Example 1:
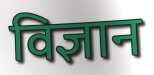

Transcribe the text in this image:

विज्ञान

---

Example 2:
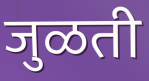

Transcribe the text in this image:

जुळती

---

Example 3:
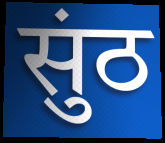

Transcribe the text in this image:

सुंठ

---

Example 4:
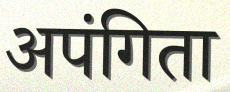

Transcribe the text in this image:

अपंगिता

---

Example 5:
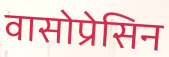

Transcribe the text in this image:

वासोप्रेसिन